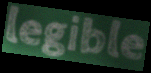
legible